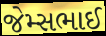
જેમ્સભાઈ